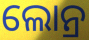
ଲୋନ୍ର